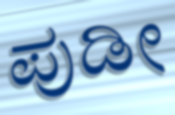
ಪುಡೀ